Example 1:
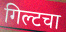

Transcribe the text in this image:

गिल्टचा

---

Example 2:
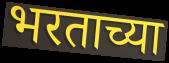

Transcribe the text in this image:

भरताच्या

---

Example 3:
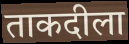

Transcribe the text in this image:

ताकदीला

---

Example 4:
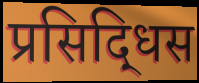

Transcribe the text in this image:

प्रसिद्धिस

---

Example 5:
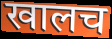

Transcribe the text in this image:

खालच